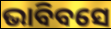
ଭାବିବସେ